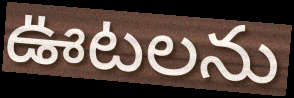
ఊటలను